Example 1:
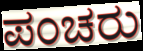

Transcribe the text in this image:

ಪಂಚರು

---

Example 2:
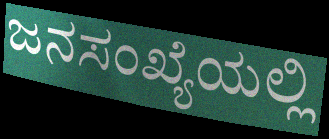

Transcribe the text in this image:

ಜನಸಂಖ್ಯೆಯಲ್ಲಿ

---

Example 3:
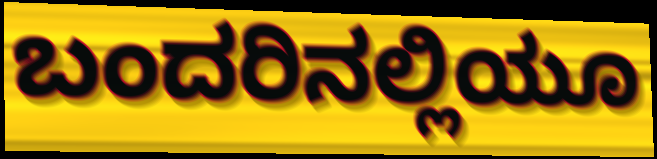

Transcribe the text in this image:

ಬಂದರಿನಲ್ಲಿಯೂ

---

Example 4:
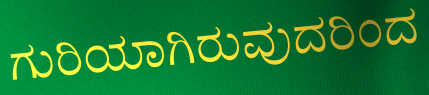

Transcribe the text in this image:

ಗುರಿಯಾಗಿರುವುದರಿಂದ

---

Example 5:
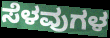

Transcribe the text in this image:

ಸೆಳವುಗಳ